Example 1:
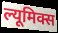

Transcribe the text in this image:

ल्यूमिक्स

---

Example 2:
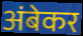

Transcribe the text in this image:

अंबेकर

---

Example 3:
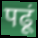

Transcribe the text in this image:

पढूं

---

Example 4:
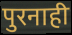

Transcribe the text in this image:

पुरनाही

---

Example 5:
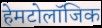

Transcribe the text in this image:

हेमटोलॉजिक